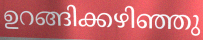
ഉറങ്ങിക്കഴിഞ്ഞു